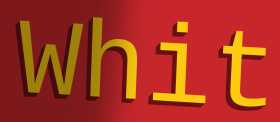
Whit